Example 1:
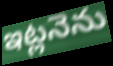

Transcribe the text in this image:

ఇట్లనెను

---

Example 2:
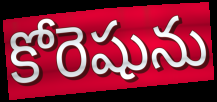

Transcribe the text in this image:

కోరెషును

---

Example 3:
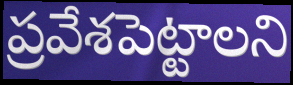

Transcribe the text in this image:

ప్రవేశపెట్టాలని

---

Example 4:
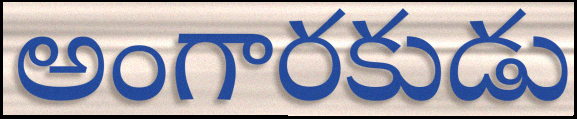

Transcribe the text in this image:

అంగారకుడు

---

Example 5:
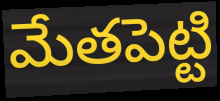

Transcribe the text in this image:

మేతపెట్టి